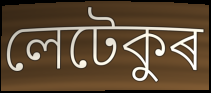
লেটেকুৰ